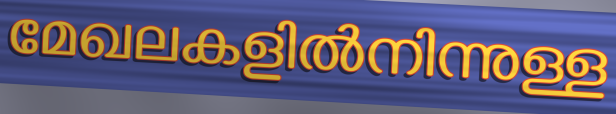
മേഖലകളിൽനിന്നുള്ള